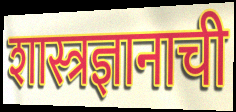
शास्त्रज्ञानाची